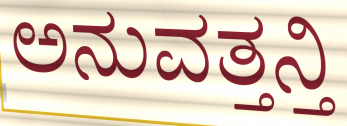
ಅನುವತ್ತನ್ತಿ